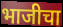
भाजीचा